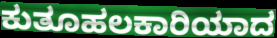
ಕುತೂಹಲಕಾರಿಯಾದ